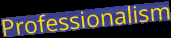
Professionalism